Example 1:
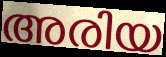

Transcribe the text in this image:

അരിയ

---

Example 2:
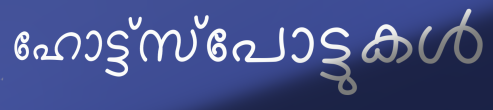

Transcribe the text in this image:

ഹോട്ട്സ്പോട്ടുകൾ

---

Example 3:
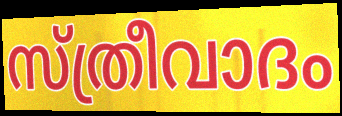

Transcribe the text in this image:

സ്ത്രീവാദം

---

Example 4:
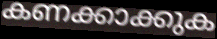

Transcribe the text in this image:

കണക്കാക്കുക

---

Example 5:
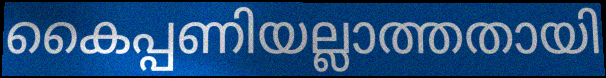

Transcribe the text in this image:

കൈപ്പണിയല്ലാത്തതായി